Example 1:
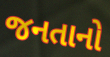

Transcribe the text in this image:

જનતાનો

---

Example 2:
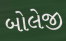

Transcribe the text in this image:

બોલેજી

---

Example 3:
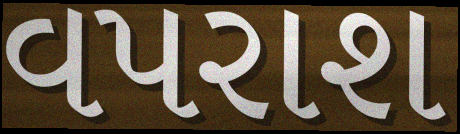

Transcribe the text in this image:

વપરાશ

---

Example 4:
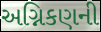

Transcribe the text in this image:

અગ્નિકણની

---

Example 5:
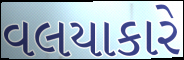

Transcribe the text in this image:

વલયાકારે